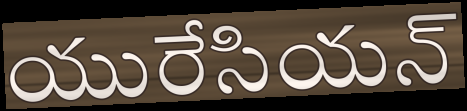
యురేసియన్